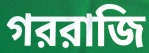
গররাজি